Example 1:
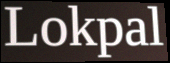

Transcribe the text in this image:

Lokpal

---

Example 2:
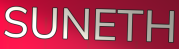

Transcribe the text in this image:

SUNETH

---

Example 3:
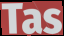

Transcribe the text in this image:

Tas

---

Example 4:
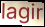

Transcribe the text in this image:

lagir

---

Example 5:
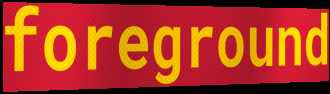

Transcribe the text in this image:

foreground